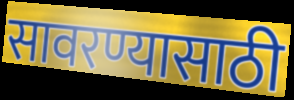
सावरण्यासाठी